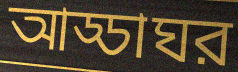
আড্ডাঘর